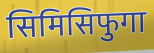
सिमिसिफुगा